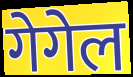
गेगेल